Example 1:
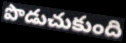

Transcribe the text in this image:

పొడుచుకుంది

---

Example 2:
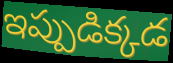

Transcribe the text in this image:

ఇప్పుడిక్కడ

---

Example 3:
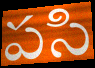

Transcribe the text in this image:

పసి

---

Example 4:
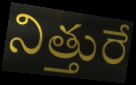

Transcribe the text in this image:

నిత్తురే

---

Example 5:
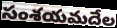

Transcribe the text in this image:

సంశయమదేల